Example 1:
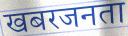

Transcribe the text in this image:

खबरजनता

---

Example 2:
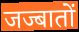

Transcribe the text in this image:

जज्बातों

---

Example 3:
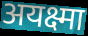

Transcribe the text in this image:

अयक्ष्मा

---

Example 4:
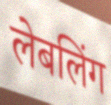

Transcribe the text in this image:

लेबलिंग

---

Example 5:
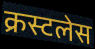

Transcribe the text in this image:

क्रस्टलेस